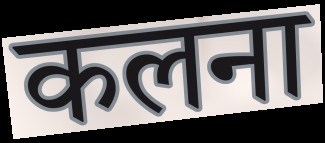
कलना